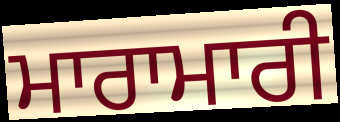
ਮਾਰਾਮਾਰੀ